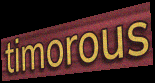
timorous